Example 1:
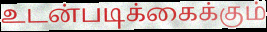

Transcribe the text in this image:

உடன்படிக்கைக்கும்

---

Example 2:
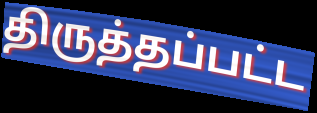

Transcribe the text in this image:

திருத்தப்பட்ட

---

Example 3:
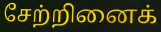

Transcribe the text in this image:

சேற்றினைக்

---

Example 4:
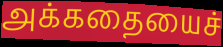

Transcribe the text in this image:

அக்கதையைச்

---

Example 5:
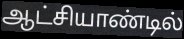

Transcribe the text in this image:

ஆட்சியாண்டில்